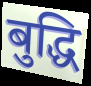
बुद्धि